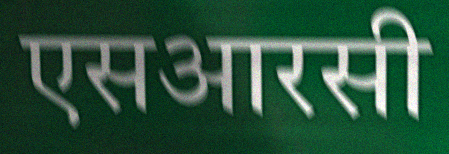
एसआरसी